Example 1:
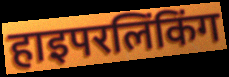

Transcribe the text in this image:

हाइपरलिंकिंग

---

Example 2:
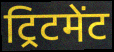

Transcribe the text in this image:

ट्रिटमेंट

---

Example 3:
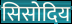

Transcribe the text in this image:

सिसोदिय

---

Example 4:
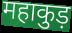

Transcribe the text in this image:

महाकुड़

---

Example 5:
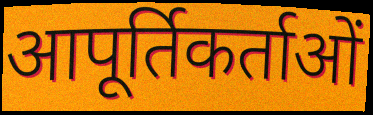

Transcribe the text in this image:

आपूर्तिकर्ताओं